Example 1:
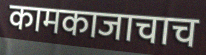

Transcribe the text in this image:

कामकाजाचाच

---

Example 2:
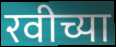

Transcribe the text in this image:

रवीच्या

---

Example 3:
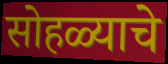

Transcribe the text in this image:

सोहळ्याचे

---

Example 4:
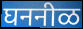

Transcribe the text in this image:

घननीळ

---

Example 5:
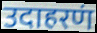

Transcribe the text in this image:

उदाहरणं